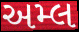
અમ્લ